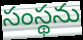
సంస్థను